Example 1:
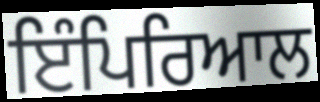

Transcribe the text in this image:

ਇੰਪਿਰਿਆਲ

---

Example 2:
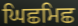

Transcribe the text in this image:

ਘਿਛਮਿਛ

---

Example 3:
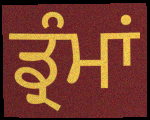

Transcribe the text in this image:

ਡ੍ਰੰਮਾਂ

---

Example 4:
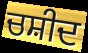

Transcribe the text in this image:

ਚਸ਼ੀਦ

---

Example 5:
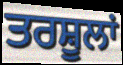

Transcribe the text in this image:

ਤਰਸ਼ੂਲਾਂ